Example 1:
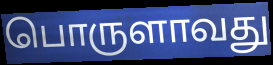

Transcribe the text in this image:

பொருளாவது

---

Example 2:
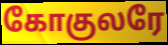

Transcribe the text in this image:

கோகுலரே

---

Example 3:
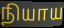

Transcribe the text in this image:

நியாய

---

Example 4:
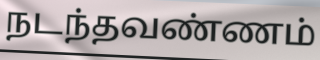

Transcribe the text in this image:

நடந்தவண்ணம்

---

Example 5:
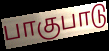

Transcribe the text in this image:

பாகுபாடு